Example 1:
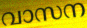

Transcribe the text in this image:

വാസന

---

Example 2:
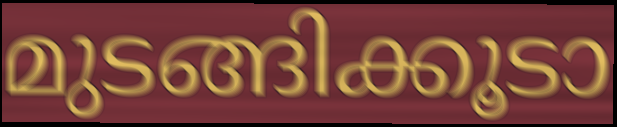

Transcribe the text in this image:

മുടങ്ങിക്കൂടാ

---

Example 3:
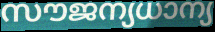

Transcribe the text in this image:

സൗജന്യധാന്യ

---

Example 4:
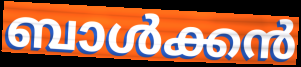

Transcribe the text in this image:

ബാൾക്കൻ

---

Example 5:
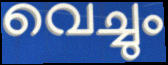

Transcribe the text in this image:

വെച്ചും